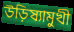
উড়িষ্যামুখী